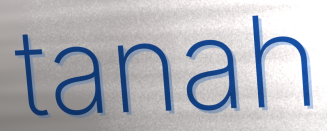
tanah